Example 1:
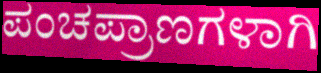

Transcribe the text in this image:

ಪಂಚಪ್ರಾಣಗಳಾಗಿ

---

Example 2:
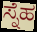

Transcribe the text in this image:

ಸ್ನೆಹ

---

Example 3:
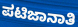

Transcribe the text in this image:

ಪಟಿಜಾನಾತಿ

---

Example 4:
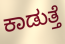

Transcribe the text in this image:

ಕಾಡುತ್ತೆ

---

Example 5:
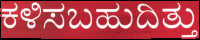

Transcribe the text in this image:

ಕಳಿಸಬಹುದಿತ್ತು